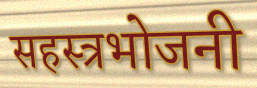
सहस्त्रभोजनी